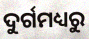
ଦୁର୍ଗମଧ୍ୟରୁ